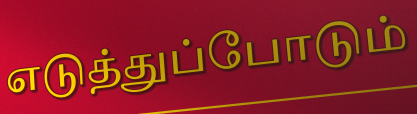
எடுத்துப்போடும்